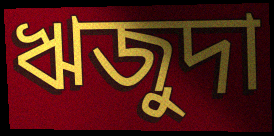
ঋজুদা